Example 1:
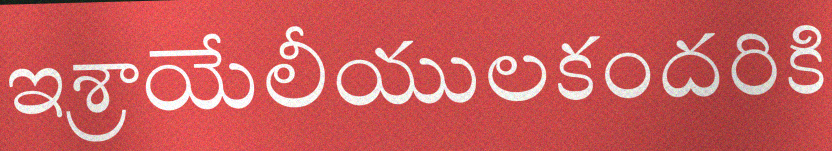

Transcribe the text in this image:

ఇశ్రాయేలీయులకందరికి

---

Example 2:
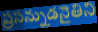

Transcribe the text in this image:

ప్రసన్నుడనైతిని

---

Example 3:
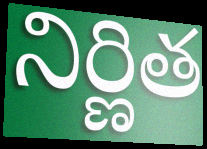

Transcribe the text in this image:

నిర్ణిత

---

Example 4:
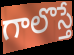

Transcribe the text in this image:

గాలొస్తే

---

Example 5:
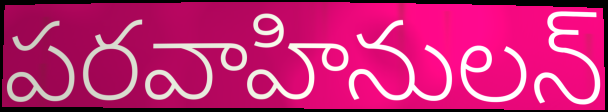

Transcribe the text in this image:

పరవాహినులన్